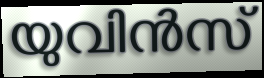
യുവിൻസ്